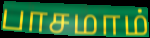
பாசமாம்